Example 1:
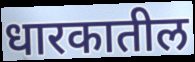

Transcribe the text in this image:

धारकातील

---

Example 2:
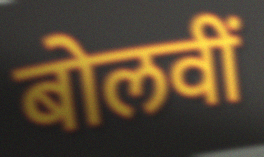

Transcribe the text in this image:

बोलवीं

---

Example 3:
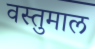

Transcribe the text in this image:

वस्तुमाल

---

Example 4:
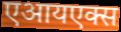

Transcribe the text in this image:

एआयएक्स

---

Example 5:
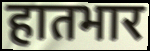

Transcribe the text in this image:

हातभार